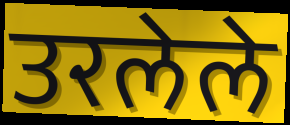
उरलेले